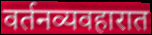
वर्तनव्यवहारात